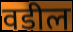
वडील